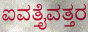
ಐವತ್ತೈವತ್ತರ